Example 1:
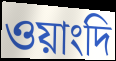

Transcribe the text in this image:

ওয়াংদি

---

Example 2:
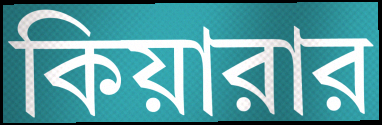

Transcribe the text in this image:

কিয়ারার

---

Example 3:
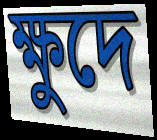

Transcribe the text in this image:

ক্ষুদে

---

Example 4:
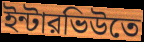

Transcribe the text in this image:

ইন্টারভিউতে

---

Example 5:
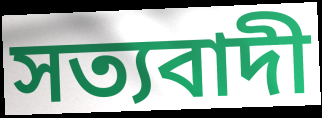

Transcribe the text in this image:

সত্যবাদী